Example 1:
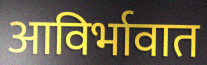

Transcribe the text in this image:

आविर्भावात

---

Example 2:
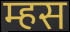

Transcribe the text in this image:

म्हस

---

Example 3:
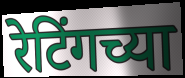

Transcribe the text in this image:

रेटिंगच्या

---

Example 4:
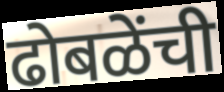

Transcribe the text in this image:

ढोबळेंची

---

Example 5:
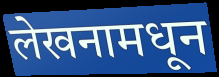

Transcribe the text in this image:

लेखनामधून